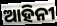
ଆହିନୀ